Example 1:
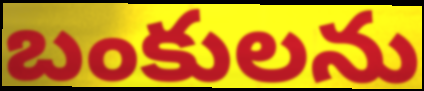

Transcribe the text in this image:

బంకులను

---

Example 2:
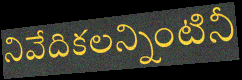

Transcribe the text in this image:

నివేదికలన్నింటినీ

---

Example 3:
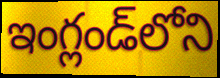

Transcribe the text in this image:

ఇంగ్లండ్‌లోని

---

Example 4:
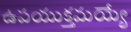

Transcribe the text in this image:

ఉపయుక్తమయ్యే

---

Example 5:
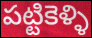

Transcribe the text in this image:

పట్టికెళ్ళి